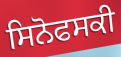
ਸਿਨੋਫਸਕੀ